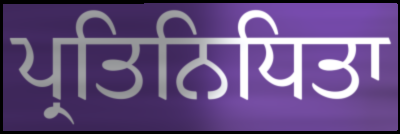
ਪ੍ਰਤਿਨਿਧਿਤਾ